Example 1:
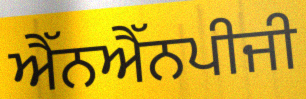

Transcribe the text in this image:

ਐੱਨਐੱਨਪੀਜੀ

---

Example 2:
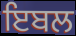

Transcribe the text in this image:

ਇਬਲ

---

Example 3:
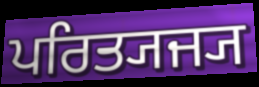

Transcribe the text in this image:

ਪਰਿਤ੍ਯਜ੍ਯ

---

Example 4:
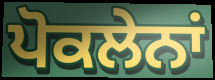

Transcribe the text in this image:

ਪੋਕਲੇਨਾਂ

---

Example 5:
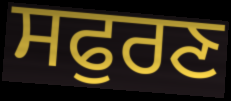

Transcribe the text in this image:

ਸਫੁਰਣ